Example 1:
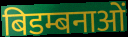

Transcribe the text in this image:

बिडम्बनाओं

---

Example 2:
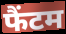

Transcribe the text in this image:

फैंटम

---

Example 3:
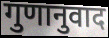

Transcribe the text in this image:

गुणानुवाद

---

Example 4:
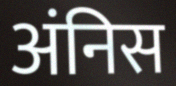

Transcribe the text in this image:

अंनिस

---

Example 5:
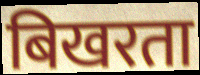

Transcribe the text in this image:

बिखरता